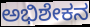
ಅಭಿಶೇಕನ